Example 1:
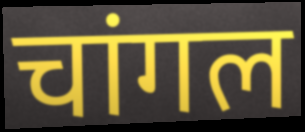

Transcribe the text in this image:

चांगल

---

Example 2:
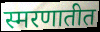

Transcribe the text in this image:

स्मरणातीत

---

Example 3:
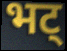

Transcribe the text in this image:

भट्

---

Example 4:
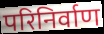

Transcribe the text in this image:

परिनिर्वाण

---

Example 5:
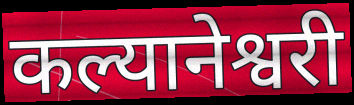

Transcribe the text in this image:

कल्यानेश्वरी